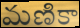
మణికా